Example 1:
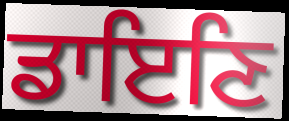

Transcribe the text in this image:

ਡਾਇਣਿ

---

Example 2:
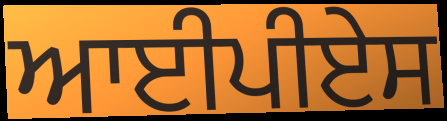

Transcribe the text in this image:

ਆਈਪੀਏਸ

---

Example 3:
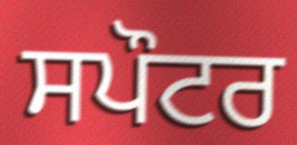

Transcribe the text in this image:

ਸਪੌਟਰ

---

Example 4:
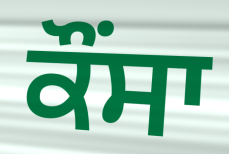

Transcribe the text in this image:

ਕੌਂਸਾ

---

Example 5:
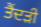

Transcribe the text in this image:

ਤੈਂਦੜੀ